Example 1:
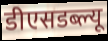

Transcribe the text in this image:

डीएसडब्ल्यू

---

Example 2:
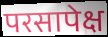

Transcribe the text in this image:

परसापेक्ष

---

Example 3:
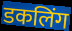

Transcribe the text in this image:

डकलिंग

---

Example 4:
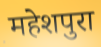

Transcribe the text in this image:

महेशपुरा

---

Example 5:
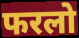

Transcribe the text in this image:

फरलो